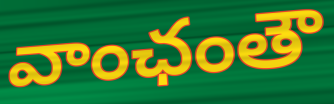
వాంఛంతౌ